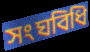
সংঘবিধি